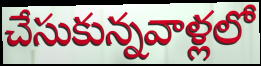
చేసుకున్నవాళ్లలో